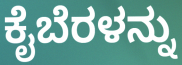
ಕೈಬೆರಳನ್ನು